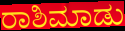
ರಾಶಿಮಾಡು